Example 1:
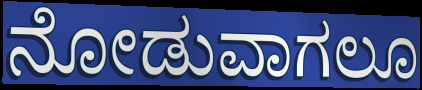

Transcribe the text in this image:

ನೋಡುವಾಗಲೂ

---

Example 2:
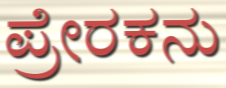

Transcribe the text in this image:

ಪ್ರೇರಕನು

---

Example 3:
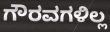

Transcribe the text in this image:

ಗೌರವಗಳಿಲ್ಲ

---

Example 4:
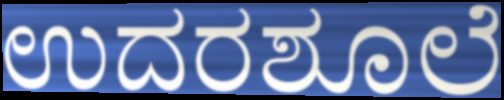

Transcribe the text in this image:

ಉದರಶೂಲೆ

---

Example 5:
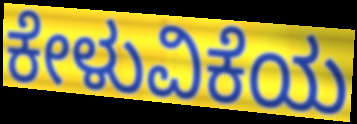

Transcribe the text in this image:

ಕೇಳುವಿಕೆಯ